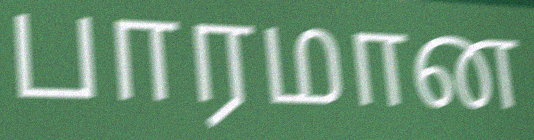
பாரமான